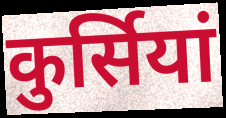
कुर्सियां